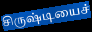
சிருஷ்டியைச்